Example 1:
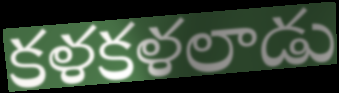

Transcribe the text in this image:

కళకళలాడు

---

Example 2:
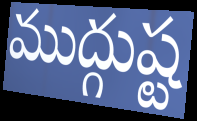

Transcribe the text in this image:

ముద్గుష్ట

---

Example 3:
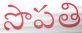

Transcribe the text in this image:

సొపతి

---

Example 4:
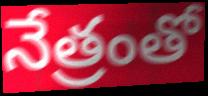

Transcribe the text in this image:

నేత్రంతో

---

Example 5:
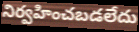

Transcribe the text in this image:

నిర్వహించబడలేదు